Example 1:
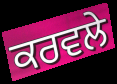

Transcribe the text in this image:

ਕਰਵਲੇ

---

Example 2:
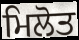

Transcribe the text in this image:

ਮਿਲੋਤ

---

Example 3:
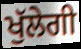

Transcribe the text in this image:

ਖੁੱਲੇਗੀ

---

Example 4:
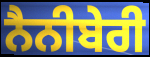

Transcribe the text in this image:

ਨੈਨੀਬੇਰੀ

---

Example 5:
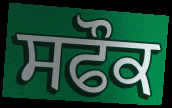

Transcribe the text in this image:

ਸਫੌਕ